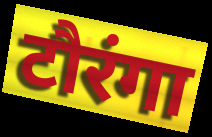
टौरंगा